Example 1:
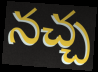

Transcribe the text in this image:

నచ్చ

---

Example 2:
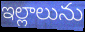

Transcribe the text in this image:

ఇల్లాలును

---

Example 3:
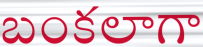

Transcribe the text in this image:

బంకలాగా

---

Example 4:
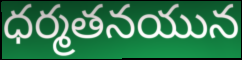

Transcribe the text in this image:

ధర్మతనయున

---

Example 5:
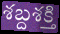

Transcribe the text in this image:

శబ్దశక్తి